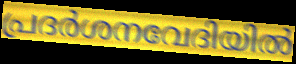
പ്രദർശനവേദിയിൽ